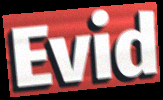
Evid